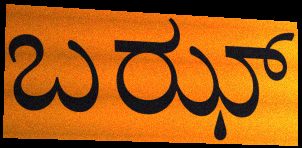
ಬಝ್